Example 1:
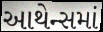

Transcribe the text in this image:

આથેન્સમાં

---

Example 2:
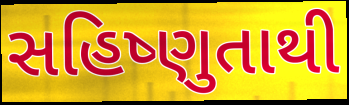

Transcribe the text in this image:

સહિષ્ણુતાથી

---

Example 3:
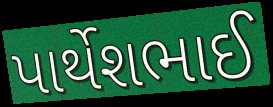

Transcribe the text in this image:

પાર્થેશભાઈ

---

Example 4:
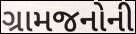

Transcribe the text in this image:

ગ્રામજનોની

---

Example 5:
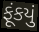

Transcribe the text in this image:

ફૂંકયું